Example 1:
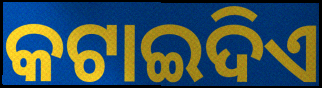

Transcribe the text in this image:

କଟାଇଦିଏ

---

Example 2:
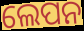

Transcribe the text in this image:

ଲେପନ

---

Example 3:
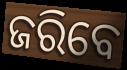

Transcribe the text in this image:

ଜରିବେ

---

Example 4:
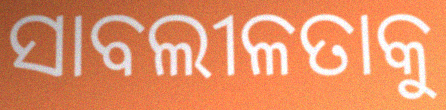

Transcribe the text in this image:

ସାବଲୀଳତାକୁ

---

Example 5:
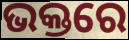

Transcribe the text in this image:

ଭକ୍ତରେ